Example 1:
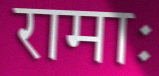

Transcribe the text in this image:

रामाः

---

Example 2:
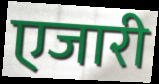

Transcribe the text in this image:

एजारी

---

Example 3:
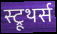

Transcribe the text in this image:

स्ट्रूथर्स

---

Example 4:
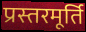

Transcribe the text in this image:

प्रस्तरमूर्ति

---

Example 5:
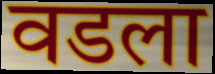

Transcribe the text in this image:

वडला